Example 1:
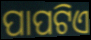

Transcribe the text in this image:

ପାପଟିଏ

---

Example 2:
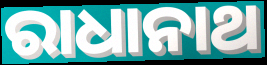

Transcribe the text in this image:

ରାଧାନାଥ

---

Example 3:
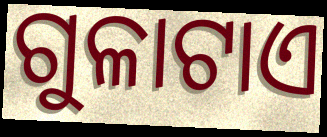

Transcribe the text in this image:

ଗୁଳାଟାଏ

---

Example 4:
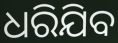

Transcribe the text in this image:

ଧରିଯିବ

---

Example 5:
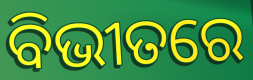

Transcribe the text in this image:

ବିଭୀତରେ